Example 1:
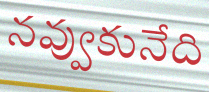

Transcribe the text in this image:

నవ్వుకునేది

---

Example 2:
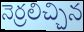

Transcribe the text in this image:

నెర్రలిచ్చిన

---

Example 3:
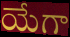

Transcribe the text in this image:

యేగా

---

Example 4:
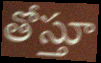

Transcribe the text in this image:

తోస్తూ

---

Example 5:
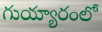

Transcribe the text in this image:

గుయ్యారంలో